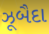
ઝૂબૈદા